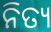
ନିତ୍ୟ